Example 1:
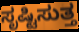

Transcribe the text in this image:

ಸೃಷ್ಟಿಸುತ್ತ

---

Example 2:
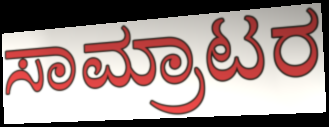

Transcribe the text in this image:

ಸಾಮ್ರಾಟರ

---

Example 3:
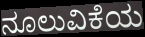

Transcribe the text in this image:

ನೂಲುವಿಕೆಯ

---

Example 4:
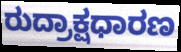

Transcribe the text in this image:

ರುದ್ರಾಕ್ಷಧಾರಣ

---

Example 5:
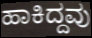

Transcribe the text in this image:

ಹಾಕಿದ್ದವು